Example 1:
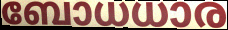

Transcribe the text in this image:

ബോധധാര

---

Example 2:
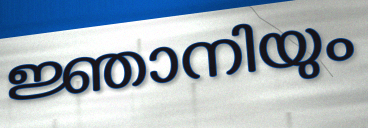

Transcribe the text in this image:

ജ്ഞാനിയും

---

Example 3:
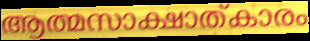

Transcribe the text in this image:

ആത്മസാക്ഷാത്കാരം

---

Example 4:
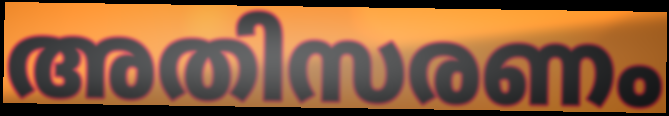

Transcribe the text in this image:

അതിസരണം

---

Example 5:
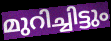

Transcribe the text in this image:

മുറിച്ചിട്ടും